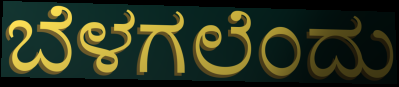
ಬೆಳಗಲೆಂದು